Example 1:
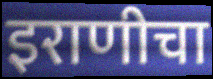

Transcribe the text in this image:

इराणीचा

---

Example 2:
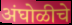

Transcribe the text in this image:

अंघोळीचे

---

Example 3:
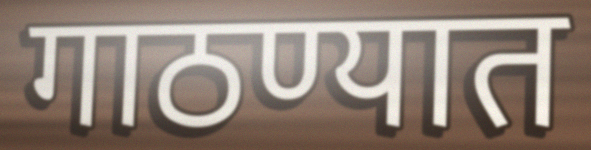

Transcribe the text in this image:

गाठण्यात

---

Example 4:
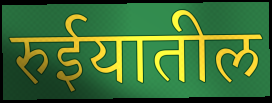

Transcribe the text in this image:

रुईयातील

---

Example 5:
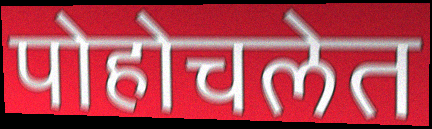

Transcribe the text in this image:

पोहोचलेत